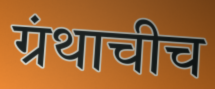
ग्रंथाचीच